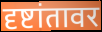
दृष्टांतावर